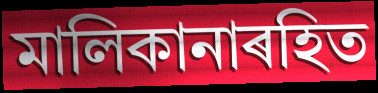
মালিকানাৰহিত